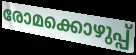
രോമക്കൊഴുപ്പ്